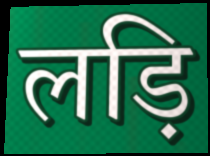
लड़ि